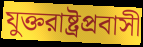
যুক্তরাষ্ট্রপ্রবাসী